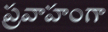
ప్రవాహంగా